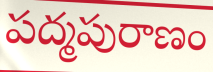
పద్మపురాణం